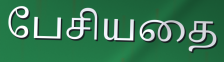
பேசியதை